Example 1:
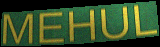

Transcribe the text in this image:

MEHUL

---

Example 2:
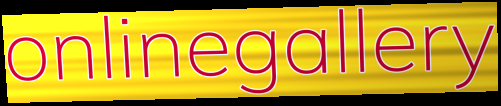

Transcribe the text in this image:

onlinegallery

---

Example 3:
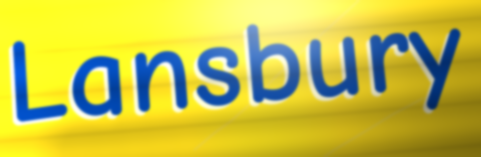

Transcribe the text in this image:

Lansbury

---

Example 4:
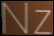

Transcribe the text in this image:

Nz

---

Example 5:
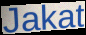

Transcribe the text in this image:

Jakat